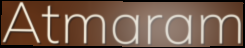
Atmaram